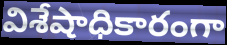
విశేషాధికారంగా